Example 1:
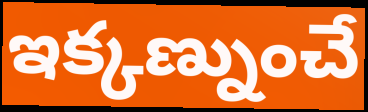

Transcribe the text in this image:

ఇక్కణ్నుంచే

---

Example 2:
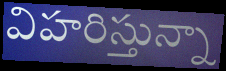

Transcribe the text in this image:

విహరిస్తున్నా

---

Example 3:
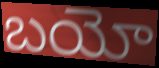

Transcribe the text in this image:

బయో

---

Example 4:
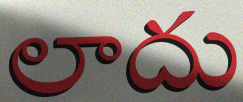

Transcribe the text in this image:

లాదు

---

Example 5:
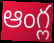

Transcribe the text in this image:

ఆంగ్ల